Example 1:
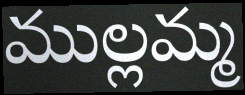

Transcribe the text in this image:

ముల్లమ్మ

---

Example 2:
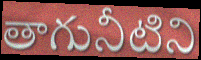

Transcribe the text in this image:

తాగునీటిని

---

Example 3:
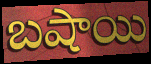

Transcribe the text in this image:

బషాయి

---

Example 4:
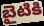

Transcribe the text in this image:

బైటికి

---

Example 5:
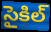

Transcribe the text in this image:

సైకిల్